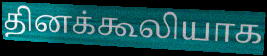
தினக்கூலியாக